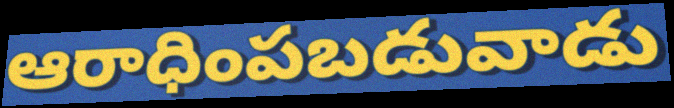
ఆరాధింపబడువాడు